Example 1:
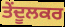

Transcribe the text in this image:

ਤੇਂਦੂਲਕਰ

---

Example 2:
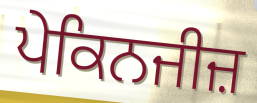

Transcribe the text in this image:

ਪੇਕਿਨਜੀਜ਼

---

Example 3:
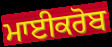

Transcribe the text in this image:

ਮਾਈਕਰੋਬ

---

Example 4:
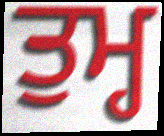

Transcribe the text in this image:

ਤੁਮ੍ਹ੍ਹ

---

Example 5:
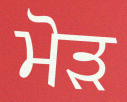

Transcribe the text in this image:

ਮੋਡ਼